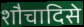
शौचादिसे